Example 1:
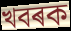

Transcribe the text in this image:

খবৰক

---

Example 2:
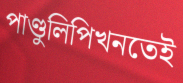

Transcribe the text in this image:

পাণ্ডুলিপিখনতেই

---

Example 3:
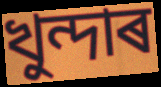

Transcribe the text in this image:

খুন্দাৰ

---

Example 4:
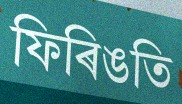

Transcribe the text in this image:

ফিৰিঙতি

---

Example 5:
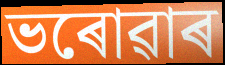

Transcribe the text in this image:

ভৰোৱাৰ